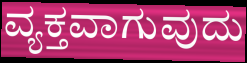
ವ್ಯಕ್ತವಾಗುವುದು